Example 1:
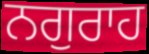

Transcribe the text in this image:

ਨਗੁਰਾਹ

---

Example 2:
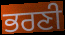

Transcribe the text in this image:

ਭਰਣੀ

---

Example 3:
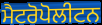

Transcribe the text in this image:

ਮੈਟਰੋਪੋਲੀਟਨ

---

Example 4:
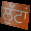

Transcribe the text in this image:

ਲੁੱਟਾਂ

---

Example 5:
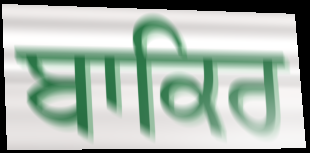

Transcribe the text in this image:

ਬਾਕਿਰ